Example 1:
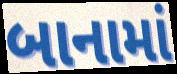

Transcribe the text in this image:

બાનામાં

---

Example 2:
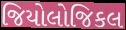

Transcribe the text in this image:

જિયોલોજિકલ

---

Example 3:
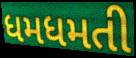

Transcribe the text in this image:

ધમધમતી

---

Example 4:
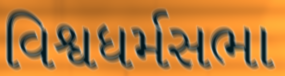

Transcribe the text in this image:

વિશ્વધર્મસભા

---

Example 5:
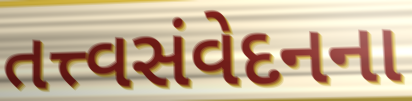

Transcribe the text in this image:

તત્ત્વસંવેદનના